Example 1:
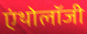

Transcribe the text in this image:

एंथोलॉजी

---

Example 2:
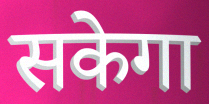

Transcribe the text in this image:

सकेगा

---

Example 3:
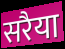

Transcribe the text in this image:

सरैया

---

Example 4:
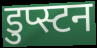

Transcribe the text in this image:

डुप्स्टन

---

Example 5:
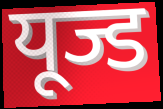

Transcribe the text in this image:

यूज्ड